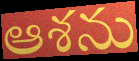
ఆశను